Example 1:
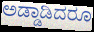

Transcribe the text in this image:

ಅಡ್ಡಾಡಿದರೂ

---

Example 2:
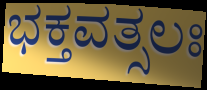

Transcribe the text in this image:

ಭಕ್ತವತ್ಸಲಃ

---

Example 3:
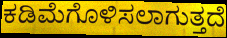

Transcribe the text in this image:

ಕಡಿಮೆಗೊಳಿಸಲಾಗುತ್ತದೆ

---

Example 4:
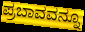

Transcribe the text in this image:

ಪ್ರಬಾವವನ್ನೂ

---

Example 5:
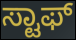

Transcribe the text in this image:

ಸ್ಟಾಫ್